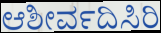
ಆಶೀರ್ವದಿಸಿರಿ